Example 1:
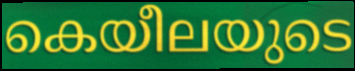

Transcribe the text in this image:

കെയീലയുടെ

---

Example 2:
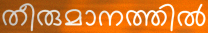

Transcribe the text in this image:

തീരുമാനത്തിൽ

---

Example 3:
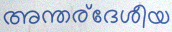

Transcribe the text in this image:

അന്തര്ദേശീയ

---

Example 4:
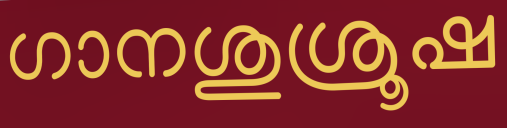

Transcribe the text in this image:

ഗാനശുശ്രൂഷ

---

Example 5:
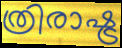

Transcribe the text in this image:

ത്രിരാഷ്ട്ര